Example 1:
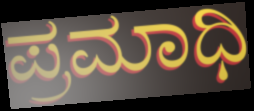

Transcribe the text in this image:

ಪ್ರಮಾಧಿ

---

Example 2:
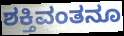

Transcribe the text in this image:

ಶಕ್ತಿವಂತನೂ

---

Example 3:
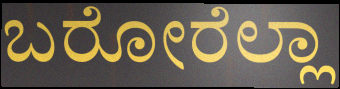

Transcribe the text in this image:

ಬರೋರೆಲ್ಲಾ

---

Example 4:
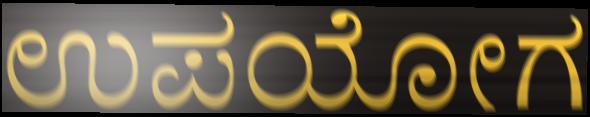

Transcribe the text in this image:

ಉಪಯೋಗ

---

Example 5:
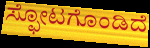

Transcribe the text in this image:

ಸ್ಫೋಟಗೊಂಡಿದೆ